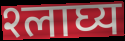
श्लाघ्य